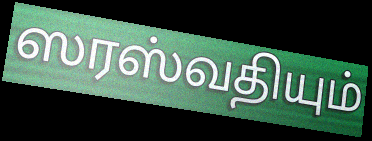
ஸரஸ்வதியும்